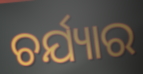
ଚର୍ଯ୍ୟାର